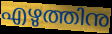
എഴുത്തിനു